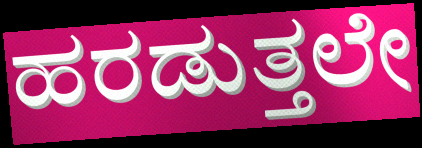
ಹರಡುತ್ತಲೇ